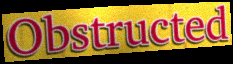
Obstructed